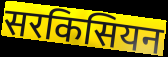
सरकिसियन